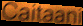
Caitaani